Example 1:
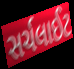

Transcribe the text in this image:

સર્ચલાઈટ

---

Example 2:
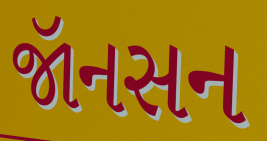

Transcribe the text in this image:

જૉનસન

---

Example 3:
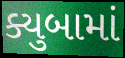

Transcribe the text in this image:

ક્યુબામાં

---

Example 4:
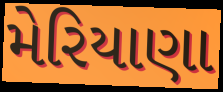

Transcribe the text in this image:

મેરિયાણા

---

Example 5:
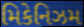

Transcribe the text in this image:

મિકેનિઝમ